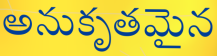
అనుకృతమైన